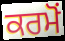
ਕਰਮੋਂ